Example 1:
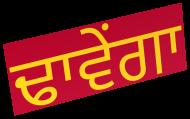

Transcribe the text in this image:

ਢਾਵੇਂਗਾ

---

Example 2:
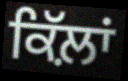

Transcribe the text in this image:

ਕਿੱਲ਼ਾਂ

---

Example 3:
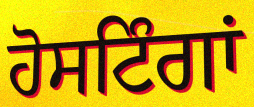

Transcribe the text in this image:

ਹੋਸਟਿੰਗਾਂ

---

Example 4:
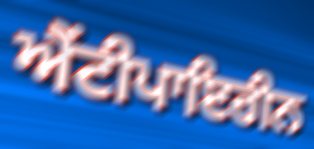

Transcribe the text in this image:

ਐਂਟੀਪਾਇਰੀਨ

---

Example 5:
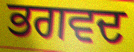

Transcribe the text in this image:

ਭਗਵਦ